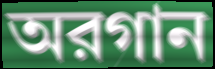
অরগান